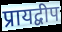
प्रायद्वीप